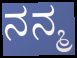
ನನ್ಮ